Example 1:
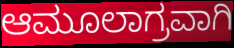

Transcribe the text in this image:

ಆಮೂಲಾಗ್ರವಾಗಿ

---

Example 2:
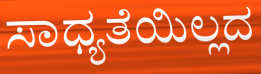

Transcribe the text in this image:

ಸಾಧ್ಯತೆಯಿಲ್ಲದ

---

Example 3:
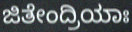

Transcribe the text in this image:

ಜಿತೇಂದ್ರಿಯಾಃ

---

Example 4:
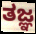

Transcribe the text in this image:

ತಜ್ಞ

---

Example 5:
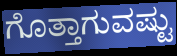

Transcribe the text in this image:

ಗೊತ್ತಾಗುವಷ್ಟು